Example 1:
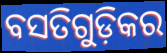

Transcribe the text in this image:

ବସତିଗୁଡ଼ିକର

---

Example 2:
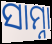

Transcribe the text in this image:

ସାମ୍ନା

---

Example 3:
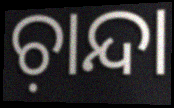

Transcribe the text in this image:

ଚ଼ାନ୍ଦା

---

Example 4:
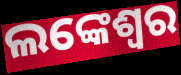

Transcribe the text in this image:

ଲଙ୍କେଶ୍ବର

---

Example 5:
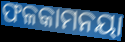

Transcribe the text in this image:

ଫଳକାମନୟା